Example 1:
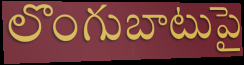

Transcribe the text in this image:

లొంగుబాటుపై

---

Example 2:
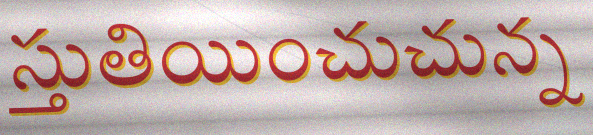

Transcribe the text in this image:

స్తుతియించుచున్న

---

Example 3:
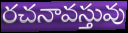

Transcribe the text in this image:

రచనావస్తువు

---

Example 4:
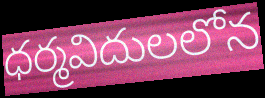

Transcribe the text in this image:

ధర్మవిదులలోన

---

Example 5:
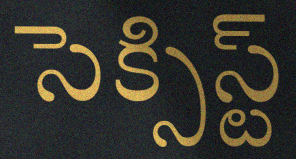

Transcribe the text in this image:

సెక్సిస్ట్